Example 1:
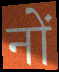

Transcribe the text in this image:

नों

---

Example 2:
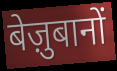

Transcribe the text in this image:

बेज़ुबानों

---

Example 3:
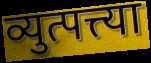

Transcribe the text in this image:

व्युत्पत्त्या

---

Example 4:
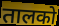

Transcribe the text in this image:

तालको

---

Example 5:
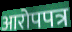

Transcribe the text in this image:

आरोपपत्र